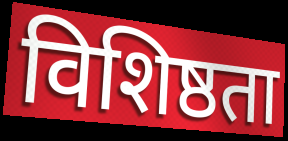
विशिष्ठता